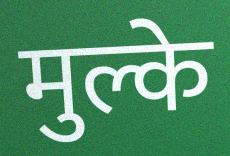
मुल्के